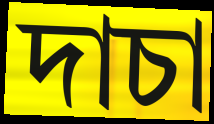
দাচা